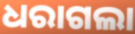
ଧରାଗଲା